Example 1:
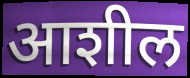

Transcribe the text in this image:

आशील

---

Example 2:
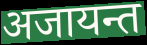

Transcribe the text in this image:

अजायन्त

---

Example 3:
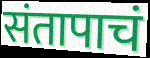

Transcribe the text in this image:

संतापाचं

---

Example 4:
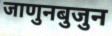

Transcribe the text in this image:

जाणुनबुजुन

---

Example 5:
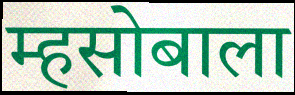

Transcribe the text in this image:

म्हसोबाला